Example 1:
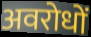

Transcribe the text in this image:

अवरोधों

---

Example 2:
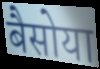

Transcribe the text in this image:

बैसोया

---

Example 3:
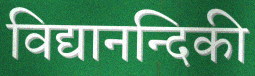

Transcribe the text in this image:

विद्यानन्दिकी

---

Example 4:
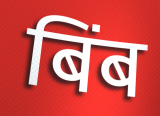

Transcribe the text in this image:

बिंब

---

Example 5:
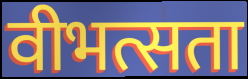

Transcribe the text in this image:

वीभत्सता